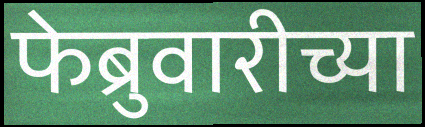
फेब्रुवारीच्या